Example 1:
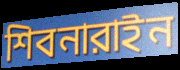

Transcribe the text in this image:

শিবনারাইন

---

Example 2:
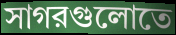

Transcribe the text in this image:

সাগরগুলোতে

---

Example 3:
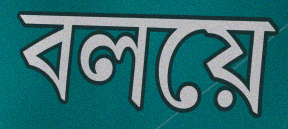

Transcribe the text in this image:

বলয়ে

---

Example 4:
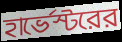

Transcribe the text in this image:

হার্ভেস্টরের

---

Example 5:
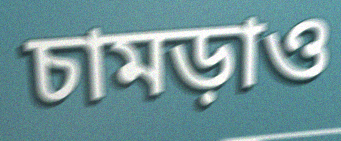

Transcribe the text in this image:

চামড়াও